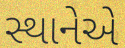
સ્થાનેએ